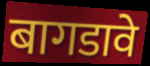
बागडावे